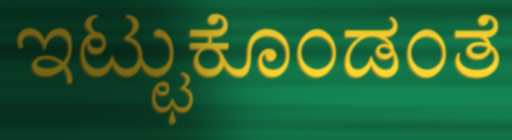
ಇಟ್ಟುಕೊಂಡಂತೆ